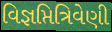
વિજ્ઞપ્તિત્રિવેણી